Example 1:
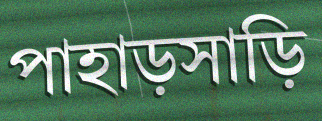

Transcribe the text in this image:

পাহাড়সাড়ি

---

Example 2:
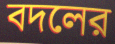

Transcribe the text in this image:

বদলের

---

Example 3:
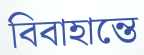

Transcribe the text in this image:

বিবাহান্তে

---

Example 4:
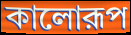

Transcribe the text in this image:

কালোরূপ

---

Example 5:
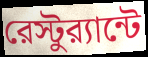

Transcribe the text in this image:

রেস্টুর‍্যান্টে